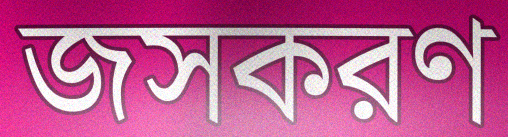
জসকরণ